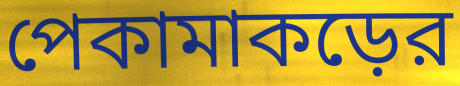
পেকামাকড়ের